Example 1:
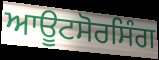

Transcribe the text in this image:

ਆਊਟਸੋਰਸਿੰਗ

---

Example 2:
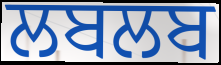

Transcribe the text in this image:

ਲਬਲਬ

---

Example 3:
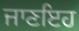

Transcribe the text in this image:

ਜਾਣਇਹ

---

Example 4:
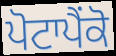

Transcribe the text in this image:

ਪੋਟਾਪੈਂਕੋ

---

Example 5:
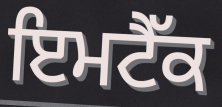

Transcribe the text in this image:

ਇਮਟੈੱਕ